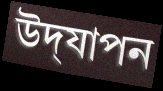
উদ্‌যাপন